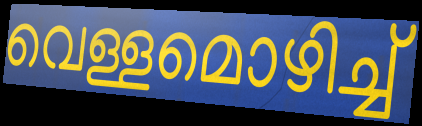
വെള്ളമൊഴിച്ച്